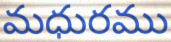
మధురము